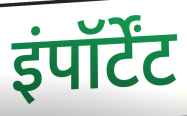
इंपॉर्टेंट